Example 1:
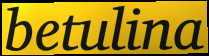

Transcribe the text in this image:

betulina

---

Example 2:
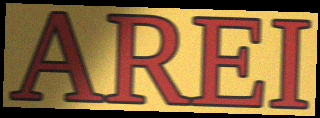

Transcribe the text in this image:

AREI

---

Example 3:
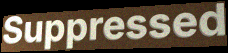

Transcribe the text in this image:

Suppressed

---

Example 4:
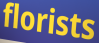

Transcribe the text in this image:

florists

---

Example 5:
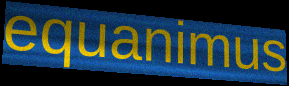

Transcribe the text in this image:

equanimus